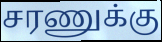
சரணுக்கு